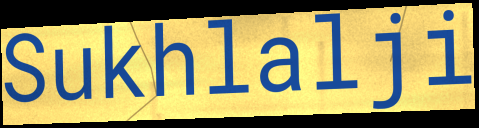
Sukhlalji